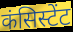
कंसिस्टेंट